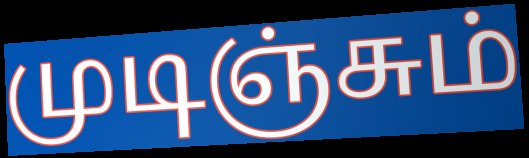
முடிஞ்சும்